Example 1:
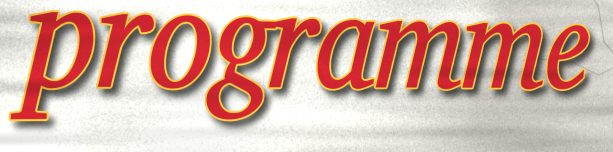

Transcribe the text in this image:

programme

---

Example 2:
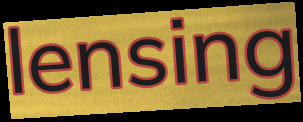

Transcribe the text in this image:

lensing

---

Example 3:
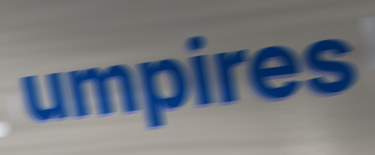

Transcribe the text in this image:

umpires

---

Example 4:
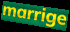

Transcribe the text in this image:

marrige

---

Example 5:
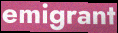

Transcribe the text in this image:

emigrant